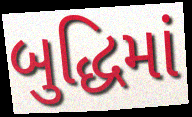
બુદ્ધિમાં